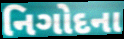
નિગોદના